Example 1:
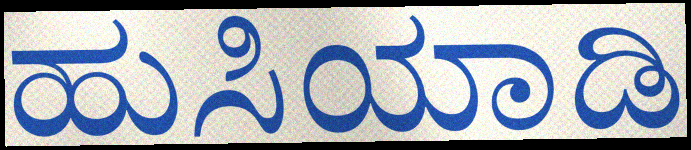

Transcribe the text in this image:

ಹುಸಿಯಾಡಿ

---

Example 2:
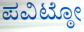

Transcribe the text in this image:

ಪವಿಟ್ಠೋ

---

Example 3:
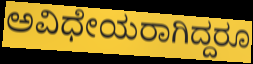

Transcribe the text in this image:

ಅವಿಧೇಯರಾಗಿದ್ದರೂ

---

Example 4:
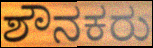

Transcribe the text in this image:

ಶೌನಕರು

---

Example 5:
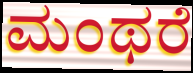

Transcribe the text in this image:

ಮಂಥರೆ